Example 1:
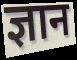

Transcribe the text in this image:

ज्ञान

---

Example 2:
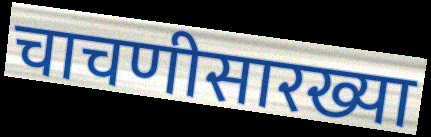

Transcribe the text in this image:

चाचणीसारख्या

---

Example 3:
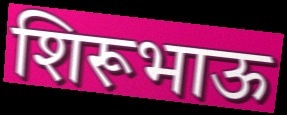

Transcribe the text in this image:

शिरूभाऊ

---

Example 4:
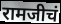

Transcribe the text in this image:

रामजीचं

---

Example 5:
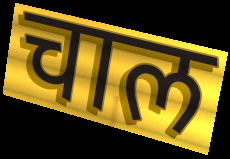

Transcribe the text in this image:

चाल